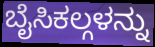
ಬೈಸಿಕಲ್ಗಳನ್ನು